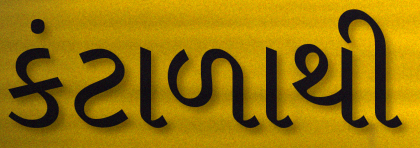
કંટાળાથી